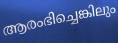
ആരംഭിച്ചെങ്കിലും